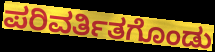
ಪರಿವರ್ತಿತಗೊಂಡು